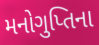
મનોગુપ્તિના